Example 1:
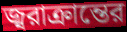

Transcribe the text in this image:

জ্বরাক্রান্তের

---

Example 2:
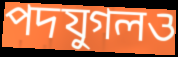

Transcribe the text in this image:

পদযুগলও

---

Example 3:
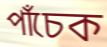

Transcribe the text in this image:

পাঁচেক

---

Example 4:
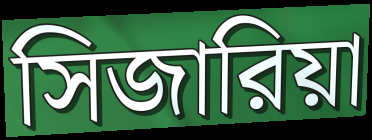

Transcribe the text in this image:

সিজারিয়া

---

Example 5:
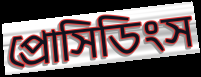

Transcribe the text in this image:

প্রোসিডিংস